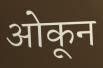
ओकून